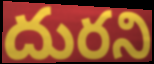
దురని